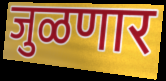
जुळणार